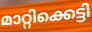
മാറ്റിക്കെട്ടി